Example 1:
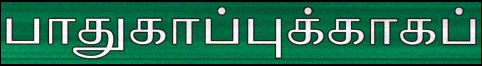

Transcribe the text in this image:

பாதுகாப்புக்காகப்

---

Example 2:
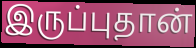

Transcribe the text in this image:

இருப்புதான்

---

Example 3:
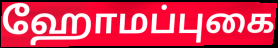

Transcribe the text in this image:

ஹோமப்புகை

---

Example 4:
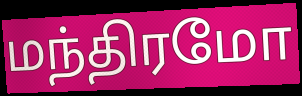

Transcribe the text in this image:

மந்திரமோ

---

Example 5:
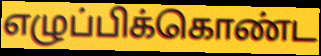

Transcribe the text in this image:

எழுப்பிக்கொண்ட